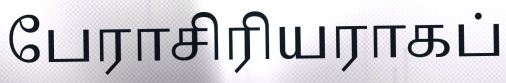
பேராசிரியராகப்